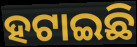
ହଟାଇଛି